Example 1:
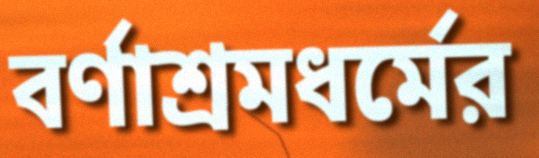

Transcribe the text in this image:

বর্ণাশ্রমধর্মের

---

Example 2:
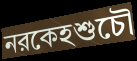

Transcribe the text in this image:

নরকেহশুচৌ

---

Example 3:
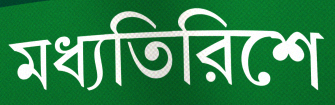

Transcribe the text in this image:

মধ্যতিরিশে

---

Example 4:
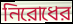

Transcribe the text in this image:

নিরোধের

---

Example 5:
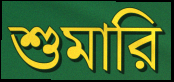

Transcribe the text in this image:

শুমারি